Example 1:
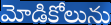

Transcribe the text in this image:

మోడికోలును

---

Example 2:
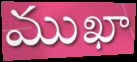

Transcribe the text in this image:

ముఖా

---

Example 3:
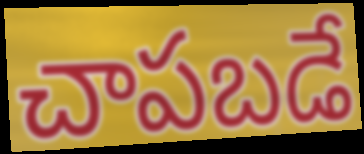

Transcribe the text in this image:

చాపబడే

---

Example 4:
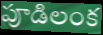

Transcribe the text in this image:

పూడిలంక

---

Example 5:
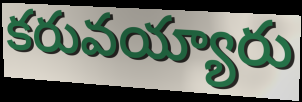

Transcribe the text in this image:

కరువయ్యారు